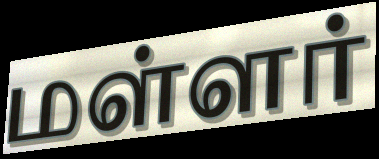
மள்ளர்